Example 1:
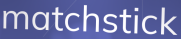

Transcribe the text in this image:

matchstick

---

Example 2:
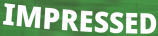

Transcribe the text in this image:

IMPRESSED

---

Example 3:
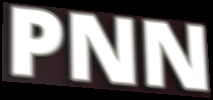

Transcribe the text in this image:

PNN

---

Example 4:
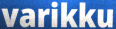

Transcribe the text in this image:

varikku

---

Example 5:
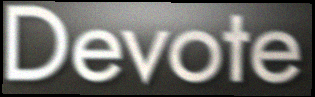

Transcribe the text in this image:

Devote